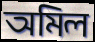
অমিল